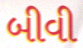
બીવી